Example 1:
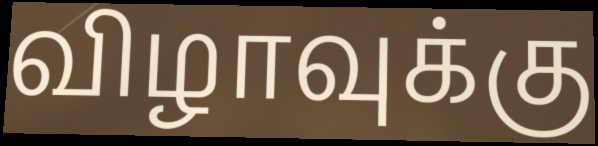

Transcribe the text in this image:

விழாவுக்கு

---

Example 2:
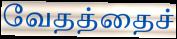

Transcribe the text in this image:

வேதத்தைச்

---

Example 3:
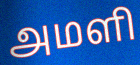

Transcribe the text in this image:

அமளி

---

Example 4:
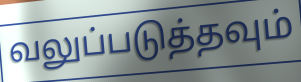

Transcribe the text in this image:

வலுப்படுத்தவும்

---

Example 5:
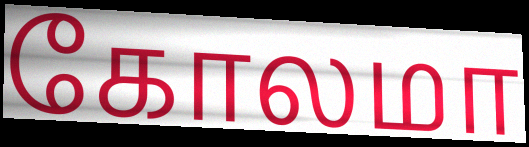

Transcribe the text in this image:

கோலமா